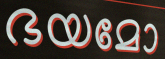
ഭയമോ